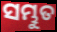
ସମ୍ଭୁତ